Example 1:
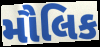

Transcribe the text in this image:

મૌલિક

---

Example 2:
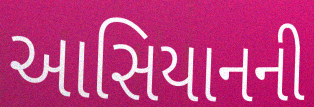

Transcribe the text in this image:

આસિયાનની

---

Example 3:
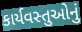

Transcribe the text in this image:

કાર્યવસ્તુઓનું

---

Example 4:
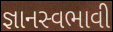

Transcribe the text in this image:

જ્ઞાનસ્વભાવી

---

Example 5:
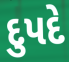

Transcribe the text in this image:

દુપદે